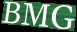
BMG